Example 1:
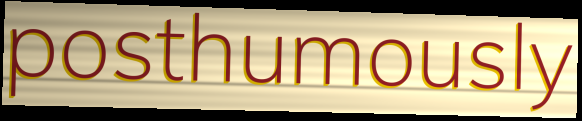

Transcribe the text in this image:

posthumously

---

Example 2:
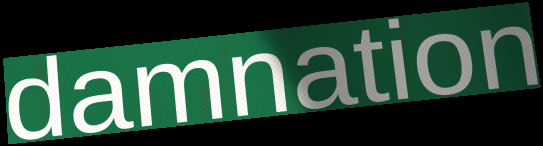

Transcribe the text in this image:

damnation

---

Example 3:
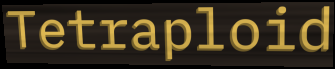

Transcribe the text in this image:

Tetraploid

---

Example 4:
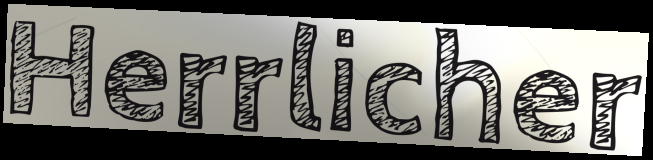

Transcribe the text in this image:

Herrlicher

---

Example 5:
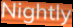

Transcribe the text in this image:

Nightly